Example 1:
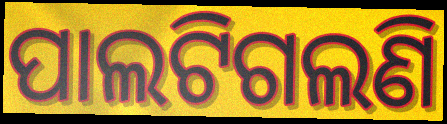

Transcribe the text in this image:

ପାଲଟିଗଲଣି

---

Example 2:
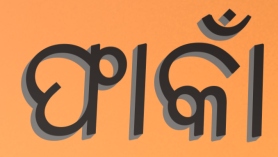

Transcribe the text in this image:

ଫାକାଁ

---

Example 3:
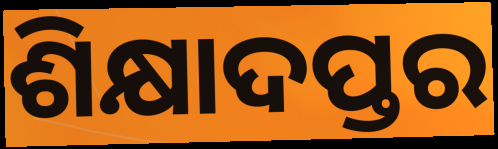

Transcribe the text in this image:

ଶିକ୍ଷାଦପ୍ତର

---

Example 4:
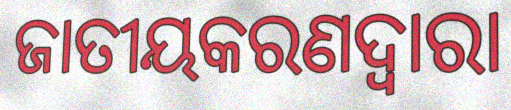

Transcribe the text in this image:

ଜାତୀୟକରଣଦ୍ୱାରା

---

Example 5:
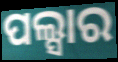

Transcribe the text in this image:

ପଲ୍ସାର